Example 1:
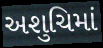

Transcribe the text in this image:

અશુચિમાં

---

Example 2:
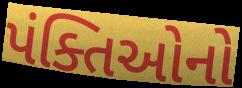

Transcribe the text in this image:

પંક્તિઓનો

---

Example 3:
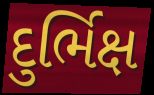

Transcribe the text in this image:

દુર્ભિક્ષ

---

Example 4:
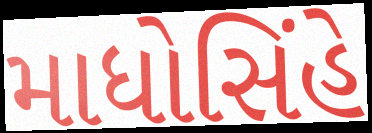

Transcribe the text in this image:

માધોસિંહે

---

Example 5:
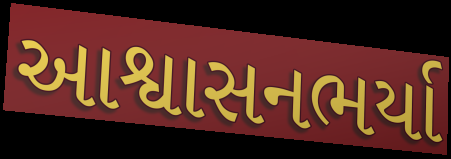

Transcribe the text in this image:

આશ્વાસનભર્યા